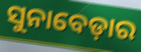
ସୁନାବେଡ଼ାର